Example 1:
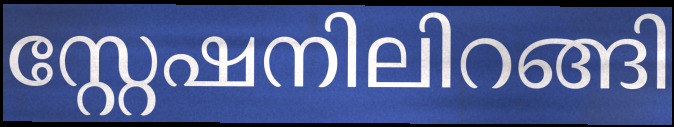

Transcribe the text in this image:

സ്റ്റേഷനിലിറങ്ങി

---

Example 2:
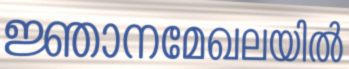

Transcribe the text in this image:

ജ്ഞാനമേഖലയിൽ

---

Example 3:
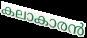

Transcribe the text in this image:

കലാകാരൻ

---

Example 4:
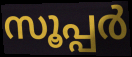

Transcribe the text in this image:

സൂപ്പർ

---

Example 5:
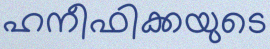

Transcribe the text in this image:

ഹനീഫിക്കയുടെ